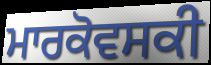
ਮਾਰਕੋਵਸਕੀ